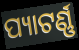
ପ୍ୟାଟର୍ଣ୍ଣ